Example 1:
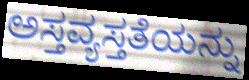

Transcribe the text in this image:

ಅಸ್ತವ್ಯಸ್ತತೆಯನ್ನು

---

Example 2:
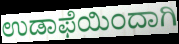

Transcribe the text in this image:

ಉಡಾಫೆಯಿಂದಾಗಿ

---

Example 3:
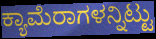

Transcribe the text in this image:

ಕ್ಯಾಮೆರಾಗಳನ್ನಿಟ್ಟು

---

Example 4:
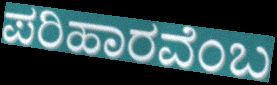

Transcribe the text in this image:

ಪರಿಹಾರವೆಂಬ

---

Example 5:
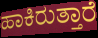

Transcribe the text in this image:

ಹಾಕಿರುತ್ತಾರೆ